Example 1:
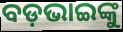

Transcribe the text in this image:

ବଡ଼ଭାଇଙ୍କୁ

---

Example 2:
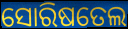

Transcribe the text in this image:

ସୋରିଷତେଲ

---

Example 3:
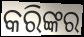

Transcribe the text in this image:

କରିଙ୍କର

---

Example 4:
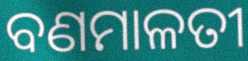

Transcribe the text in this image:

ବଣମାଳତୀ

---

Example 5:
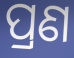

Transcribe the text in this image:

ପ୍ରଣ